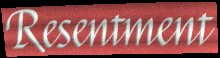
Resentment